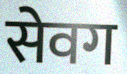
सेवग